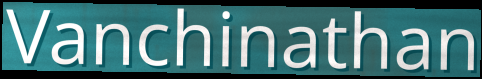
Vanchinathan